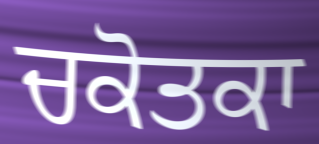
ਚਕੋਤਕਾ